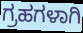
ಗ್ರಹಗಳಾಗಿ